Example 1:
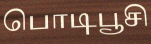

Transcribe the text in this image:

பொடிபூசி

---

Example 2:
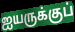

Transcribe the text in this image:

ஐயருக்குப்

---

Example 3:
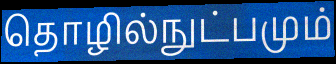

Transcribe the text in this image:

தொழில்நுட்பமும்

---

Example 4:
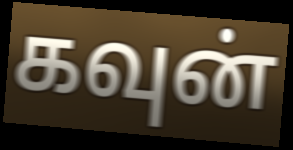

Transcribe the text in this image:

கவுன்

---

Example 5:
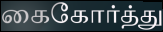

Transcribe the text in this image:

கைகோர்த்து